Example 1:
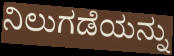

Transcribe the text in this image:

ನಿಲುಗಡೆಯನ್ನು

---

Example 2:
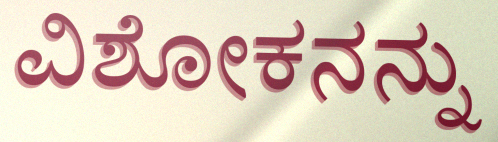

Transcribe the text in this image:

ವಿಶೋಕನನ್ನು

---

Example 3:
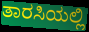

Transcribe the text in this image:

ತಾರಸಿಯಲ್ಲಿ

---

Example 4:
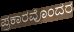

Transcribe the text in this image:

ಪ್ರಕಾರವೊಂದರ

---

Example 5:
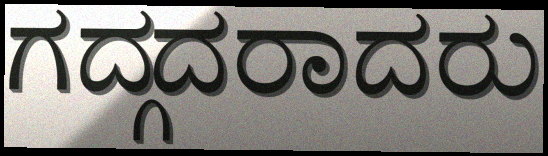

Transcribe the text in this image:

ಗದ್ಗದರಾದರು